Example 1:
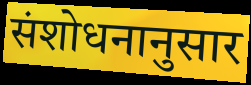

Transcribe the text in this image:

संशोधनानुसार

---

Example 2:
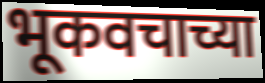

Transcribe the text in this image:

भूकवचाच्या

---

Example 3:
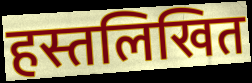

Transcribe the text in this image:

हस्तलिखित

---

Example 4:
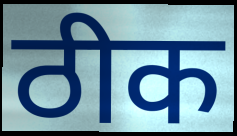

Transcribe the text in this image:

ठीक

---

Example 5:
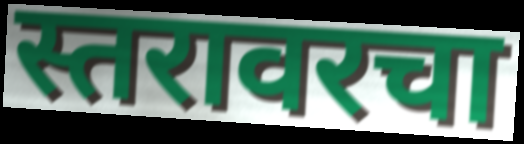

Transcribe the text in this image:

स्तरावरचा